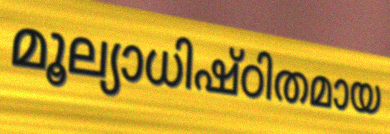
മൂല്യാധിഷ്ഠിതമായ